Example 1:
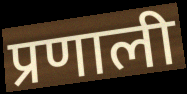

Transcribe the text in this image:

प्रणाली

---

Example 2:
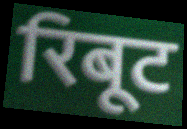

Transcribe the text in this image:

रिबूट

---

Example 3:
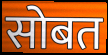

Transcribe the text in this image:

सोबत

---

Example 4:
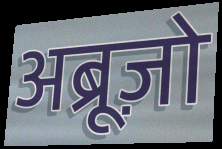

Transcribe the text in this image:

अब्रूज़ो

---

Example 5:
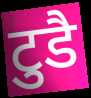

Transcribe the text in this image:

टुडै